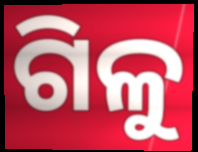
ଗିଳୁ